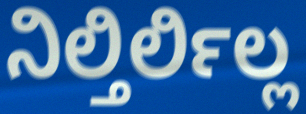
ನಿಲ್ತಿರ್ಲಿಲ್ಲ